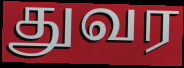
துவர